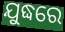
ଯୁଦ୍ଧରେ